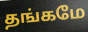
தங்கமே